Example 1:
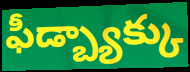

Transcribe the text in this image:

ఫీడ్బ్యాక్కు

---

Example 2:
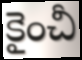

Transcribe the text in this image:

కైంచీ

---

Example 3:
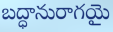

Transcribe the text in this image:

బద్ధానురాగయై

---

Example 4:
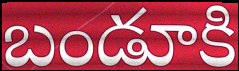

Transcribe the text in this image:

బండూకి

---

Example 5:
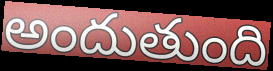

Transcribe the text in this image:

అందుతుంది